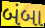
બંબા